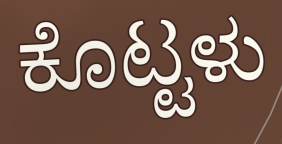
ಕೊಟ್ಟಳು